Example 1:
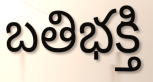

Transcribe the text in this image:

బతిభక్తి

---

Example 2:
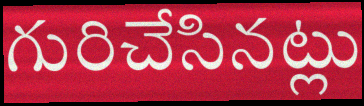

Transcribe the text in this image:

గురిచేసినట్లు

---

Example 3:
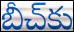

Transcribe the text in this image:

బీచ్‌కు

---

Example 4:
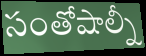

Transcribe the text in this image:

సంతోషాల్నీ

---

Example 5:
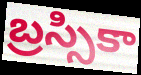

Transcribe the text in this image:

బ్రస్సికా